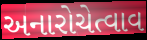
અનારોચેત્વાવ